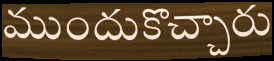
ముందుకొచ్చారు